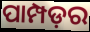
ପାମ୍ପଡ଼ର